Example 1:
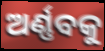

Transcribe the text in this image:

ଅର୍ଣ୍ଣବକୁ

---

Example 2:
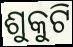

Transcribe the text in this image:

ଶୁକୁଟି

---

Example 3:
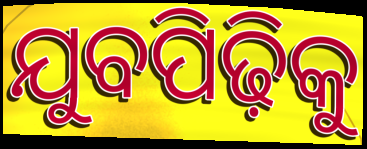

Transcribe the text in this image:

ଯୁବପିଢ଼ିକୁ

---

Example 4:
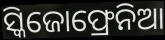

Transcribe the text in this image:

ସ୍କିଜୋଫ୍ରେନିଆ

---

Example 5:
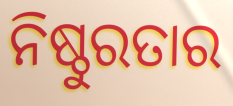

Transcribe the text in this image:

ନିଷ୍ଠୁରତାର